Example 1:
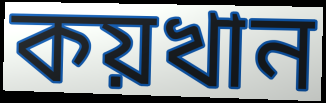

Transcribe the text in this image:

কয়খান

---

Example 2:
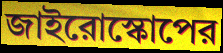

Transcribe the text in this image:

জাইরোস্কোপের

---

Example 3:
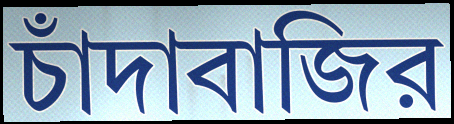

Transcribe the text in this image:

চাঁদাবাজির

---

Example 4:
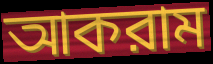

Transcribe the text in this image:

আকরাম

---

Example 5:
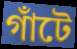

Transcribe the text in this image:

গাঁটে